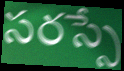
సరస్సే